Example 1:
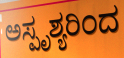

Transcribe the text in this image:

ಅಸ್ಪೃಶ್ಯರಿಂದ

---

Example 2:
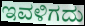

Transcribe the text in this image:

ಇವಳಿಗದು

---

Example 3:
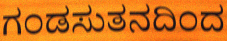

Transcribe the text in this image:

ಗಂಡಸುತನದಿಂದ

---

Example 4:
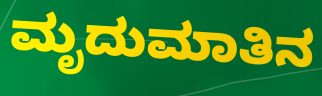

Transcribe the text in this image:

ಮೃದುಮಾತಿನ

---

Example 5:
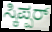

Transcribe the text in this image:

ಸ್ಕಿಪ್ಪರ್